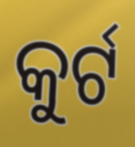
କୁର୍ଟ